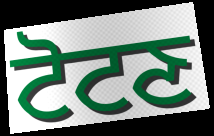
ਟੋਟਣ